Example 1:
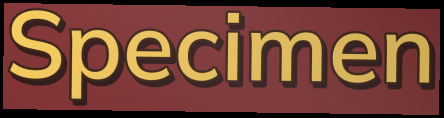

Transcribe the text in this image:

Specimen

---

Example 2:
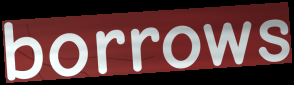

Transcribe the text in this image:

borrows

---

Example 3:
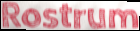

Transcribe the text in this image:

Rostrum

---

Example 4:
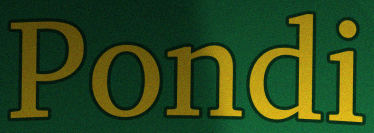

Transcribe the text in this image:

Pondi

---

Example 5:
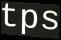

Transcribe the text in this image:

tps